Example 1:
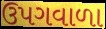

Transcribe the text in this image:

ઉપગવાળા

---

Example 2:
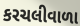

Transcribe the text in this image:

કરચલીવાળા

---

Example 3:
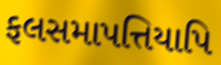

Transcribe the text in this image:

ફલસમાપત્તિયાપિ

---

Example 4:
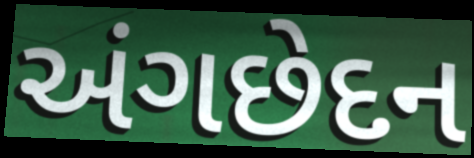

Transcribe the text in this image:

અંગછેદન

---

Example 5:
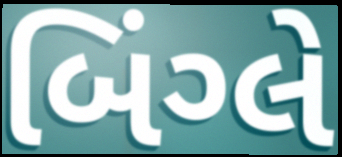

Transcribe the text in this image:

બિંગ્લે